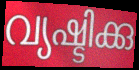
വ്യഷ്ടിക്കു